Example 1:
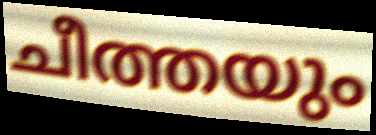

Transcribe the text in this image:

ചീത്തയും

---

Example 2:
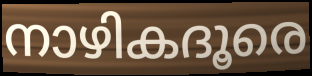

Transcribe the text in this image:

നാഴികദൂരെ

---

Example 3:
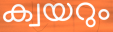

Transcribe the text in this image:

ക്വയറും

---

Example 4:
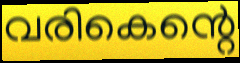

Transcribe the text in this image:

വരികെന്റെ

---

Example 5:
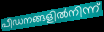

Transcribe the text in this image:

പീഡനങ്ങളിൽനിന്ന്